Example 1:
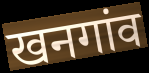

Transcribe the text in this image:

खनगांव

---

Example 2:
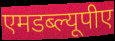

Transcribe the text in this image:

एमडब्ल्यूपीए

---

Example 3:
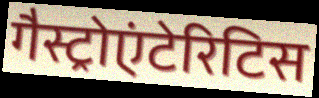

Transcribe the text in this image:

गैस्ट्रोएंटेरिटिस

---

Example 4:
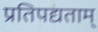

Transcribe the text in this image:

प्रतिपद्यताम्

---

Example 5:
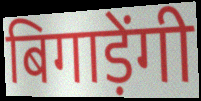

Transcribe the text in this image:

बिगाड़ेंगी